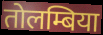
तोलम्बिया